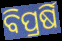
ବିପ୍ରର୍ଷି